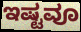
ಇಷ್ಟವೂ